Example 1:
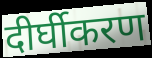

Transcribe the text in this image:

दीर्घीकरण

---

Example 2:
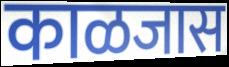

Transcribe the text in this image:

काळजास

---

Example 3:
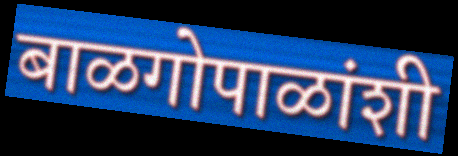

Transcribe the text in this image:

बाळगोपाळांशी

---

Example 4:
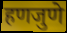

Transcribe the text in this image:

हणजुणे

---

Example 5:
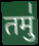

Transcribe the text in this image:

तमु॑